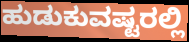
ಹುಡುಕುವಷ್ಟರಲ್ಲಿ